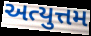
અત્યુત્તમ